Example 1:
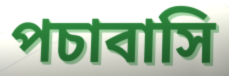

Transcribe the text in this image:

পচাবাসি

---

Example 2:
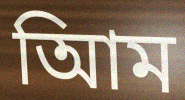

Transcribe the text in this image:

আিম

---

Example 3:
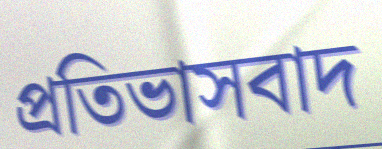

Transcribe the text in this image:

প্রতিভাসবাদ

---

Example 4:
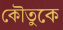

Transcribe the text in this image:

কৌতুকে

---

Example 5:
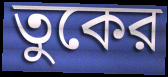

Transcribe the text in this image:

তুকের